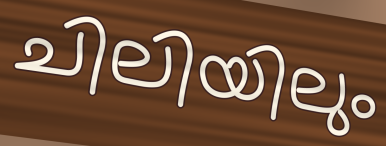
ചിലിയിലും